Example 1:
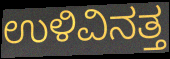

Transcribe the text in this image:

ಉಳಿವಿನತ್ತ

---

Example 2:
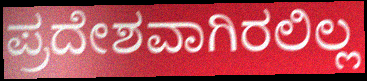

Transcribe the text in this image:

ಪ್ರದೇಶವಾಗಿರಲಿಲ್ಲ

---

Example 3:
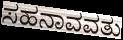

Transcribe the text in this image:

ಸಹನಾವವತು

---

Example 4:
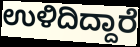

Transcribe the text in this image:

ಉಳಿದಿದ್ದಾರೆ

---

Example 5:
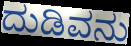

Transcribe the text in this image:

ದುಡಿವನು